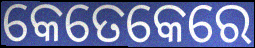
କେତେକେରେ